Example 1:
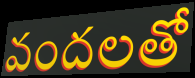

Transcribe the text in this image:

వందలతో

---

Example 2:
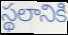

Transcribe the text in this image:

స్థలానికి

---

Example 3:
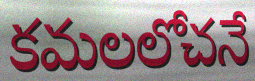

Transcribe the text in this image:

కమలలోచనే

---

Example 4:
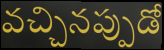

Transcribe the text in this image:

వచ్చినప్పుడో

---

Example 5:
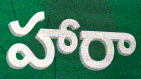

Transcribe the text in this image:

హారా